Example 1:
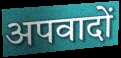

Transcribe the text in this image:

अपवादों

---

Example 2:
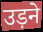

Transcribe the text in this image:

उड़ने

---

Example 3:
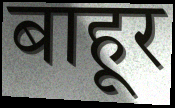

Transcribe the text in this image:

बाहूर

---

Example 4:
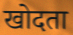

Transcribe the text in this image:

खोदता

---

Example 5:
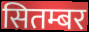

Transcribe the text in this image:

सितम्‍बर